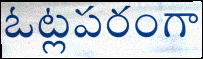
ఓట్లపరంగా